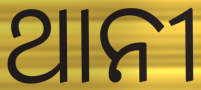
ଥାନୀ